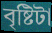
বৃষ্টিটা